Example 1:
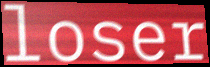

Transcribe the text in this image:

loser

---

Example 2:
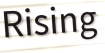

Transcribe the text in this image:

Rising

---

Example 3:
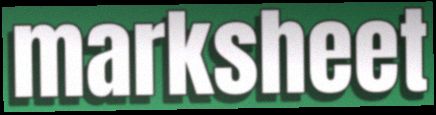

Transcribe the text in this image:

marksheet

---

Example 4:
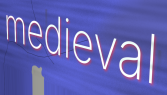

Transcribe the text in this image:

medieval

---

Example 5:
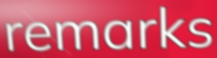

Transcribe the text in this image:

remarks